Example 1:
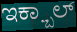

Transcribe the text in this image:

ಇಕ಼್ಬಾಲ್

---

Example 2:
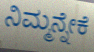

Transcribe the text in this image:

ನಿಮ್ಮನ್ನೇಕೆ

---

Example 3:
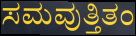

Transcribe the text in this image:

ಸಮವುತ್ತಿತಂ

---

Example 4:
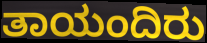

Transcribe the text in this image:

ತಾಯಂದಿರು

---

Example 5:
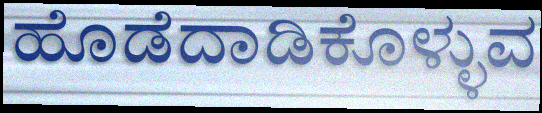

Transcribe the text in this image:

ಹೊಡೆದಾಡಿಕೊಳ್ಳುವ